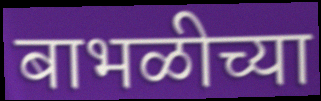
बाभळीच्या